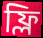
ফ্লি